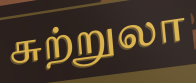
சுற்றுலா